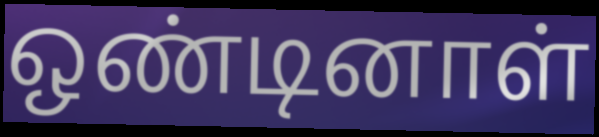
ஒண்டினாள்